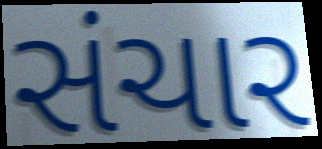
સંચાર